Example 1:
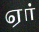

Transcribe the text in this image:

ஏர்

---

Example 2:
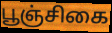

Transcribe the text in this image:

பூஞ்சிகை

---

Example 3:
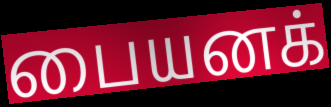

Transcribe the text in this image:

பையனக்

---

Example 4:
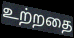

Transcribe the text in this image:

உற்றதை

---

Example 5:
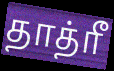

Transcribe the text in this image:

தாத்ரீ